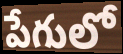
పేగులో